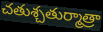
చతుశ్చతుర్మాత్రా